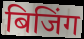
बिजिंग